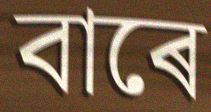
বাৰে